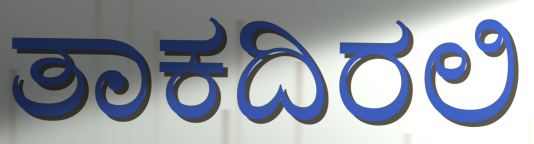
ತಾಕದಿರಲಿ